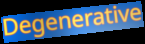
Degenerative